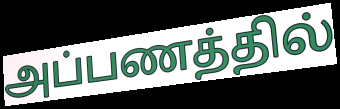
அப்பணத்தில்